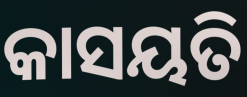
କାସୟତି